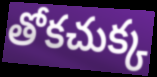
తోకచుక్క